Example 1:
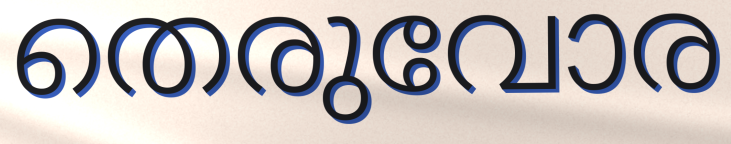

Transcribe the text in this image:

തെരുവോര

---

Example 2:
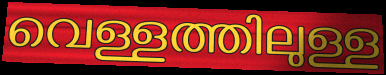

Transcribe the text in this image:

വെള്ളത്തിലുള്ള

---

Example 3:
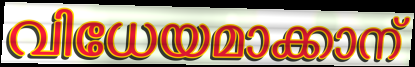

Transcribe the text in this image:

വിധേയമാക്കാന്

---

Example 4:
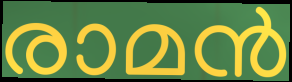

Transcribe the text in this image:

രാമൻ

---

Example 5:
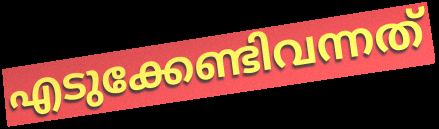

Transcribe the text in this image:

എടുക്കേണ്ടിവന്നത്